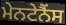
ਮੇਨਟੇਨੈਂਸ